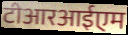
टीआरआईएम